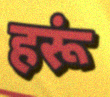
हरूं